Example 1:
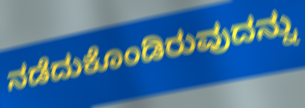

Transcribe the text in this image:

ನಡೆದುಕೊಂಡಿರುವುದನ್ನು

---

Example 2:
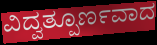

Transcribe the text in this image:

ವಿದ್ವತ್ಪೂರ್ಣವಾದ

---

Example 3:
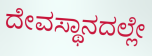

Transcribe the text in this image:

ದೇವಸ್ಥಾನದಲ್ಲೇ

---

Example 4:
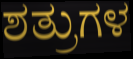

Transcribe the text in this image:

ಶತ್ರುಗಳ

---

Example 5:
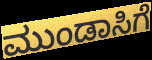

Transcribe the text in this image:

ಮುಂಡಾಸಿಗೆ